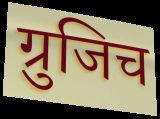
ग्रुजिच